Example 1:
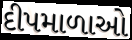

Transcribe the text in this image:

દીપમાળાઓ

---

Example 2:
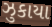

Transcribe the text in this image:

ઝુકાયા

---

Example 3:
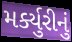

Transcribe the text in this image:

મર્ક્યુરીનું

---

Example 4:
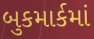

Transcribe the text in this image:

બુકમાર્કમાં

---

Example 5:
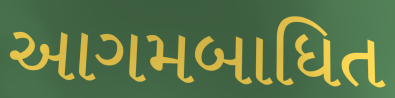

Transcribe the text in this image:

આગમબાધિત